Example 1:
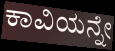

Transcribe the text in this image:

ಕಾವಿಯನ್ನೇ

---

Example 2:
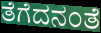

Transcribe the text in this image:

ತೆಗೆದನಂತೆ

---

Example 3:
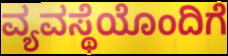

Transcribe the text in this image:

ವ್ಯವಸ್ಥೆಯೊಂದಿಗೆ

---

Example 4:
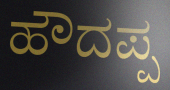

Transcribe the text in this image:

ಹೌದಪ್ಪ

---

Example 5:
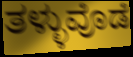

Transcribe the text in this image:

ತಳ್ಳುವೊಡೆ